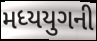
મધ્યયુગની